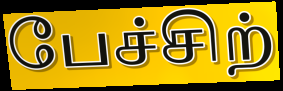
பேச்சிற்